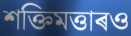
শক্তিমত্তাৰও